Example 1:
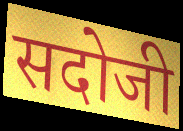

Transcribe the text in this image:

सदोजी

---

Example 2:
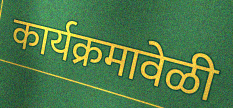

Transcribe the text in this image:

कार्यक्रमावेळी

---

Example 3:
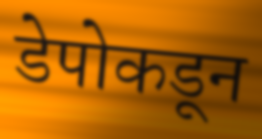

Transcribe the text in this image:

डेपोकडून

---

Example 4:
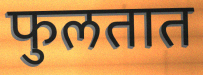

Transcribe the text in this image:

फुलतात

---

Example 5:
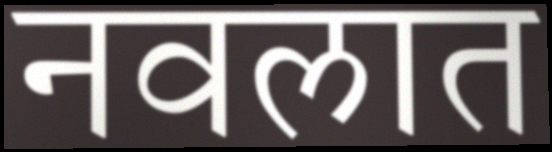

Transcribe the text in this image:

नवलात